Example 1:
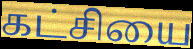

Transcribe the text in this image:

கட்சியை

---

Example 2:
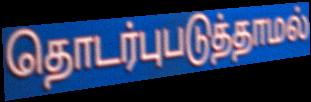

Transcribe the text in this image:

தொடர்புபடுத்தாமல்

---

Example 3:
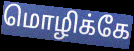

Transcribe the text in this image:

மொழிக்கே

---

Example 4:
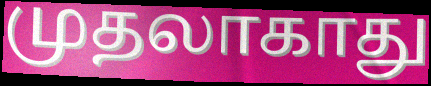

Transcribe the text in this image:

முதலாகாது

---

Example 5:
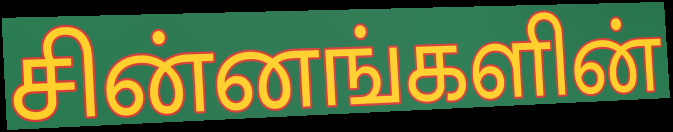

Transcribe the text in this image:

சின்னங்களின்